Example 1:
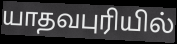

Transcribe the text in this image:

யாதவபுரியில்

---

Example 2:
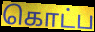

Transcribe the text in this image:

கொட்ப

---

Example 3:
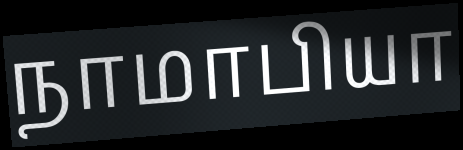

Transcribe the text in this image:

நாமாபியா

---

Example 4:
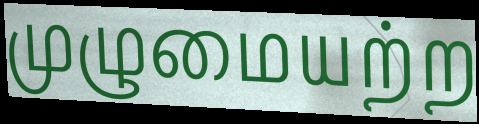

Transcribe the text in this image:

முழுமையற்ற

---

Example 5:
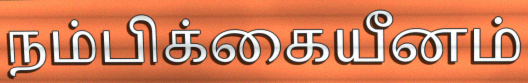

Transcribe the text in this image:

நம்பிக்கையீனம்